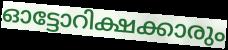
ഓട്ടോറിക്ഷക്കാരും